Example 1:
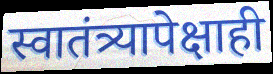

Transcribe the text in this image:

स्वातंत्र्यापेक्षाही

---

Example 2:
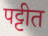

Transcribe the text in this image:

पट्टीत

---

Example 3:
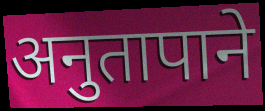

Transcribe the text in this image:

अनुतापाने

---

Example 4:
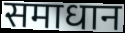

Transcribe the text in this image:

समाधान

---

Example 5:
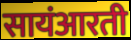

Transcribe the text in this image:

सायंआरती